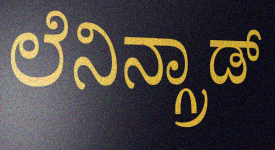
ಲೆನಿನ್ಗ್ರಾಡ್